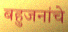
बहुजनांचे